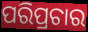
ପରିପ୍ରଚାର